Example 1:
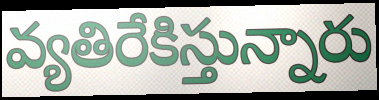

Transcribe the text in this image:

వ్యతిరేకిస్తున్నారు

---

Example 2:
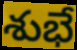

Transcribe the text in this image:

శుభే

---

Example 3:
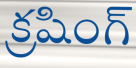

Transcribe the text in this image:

క్రషింగ్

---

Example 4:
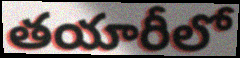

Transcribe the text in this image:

తయారీలో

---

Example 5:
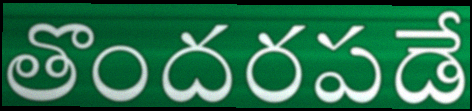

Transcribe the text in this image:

తొందరపడే